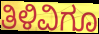
ತಿಳಿವಿಗೂ